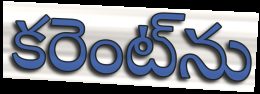
కరెంట్‌ను